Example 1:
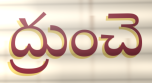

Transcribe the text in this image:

ద్రుంచె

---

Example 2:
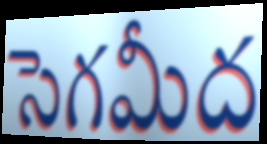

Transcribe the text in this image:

సెగమీద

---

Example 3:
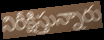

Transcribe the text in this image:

నిరీక్షిస్తున్నారు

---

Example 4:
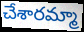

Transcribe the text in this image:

చేశారమ్మా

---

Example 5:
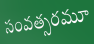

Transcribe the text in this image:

సంవత్సరమూ